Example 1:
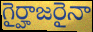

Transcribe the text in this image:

గైర్హాజరైనా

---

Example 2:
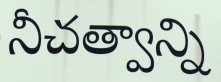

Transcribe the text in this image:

నీచత్వాన్ని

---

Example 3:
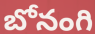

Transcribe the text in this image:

బోనంగి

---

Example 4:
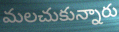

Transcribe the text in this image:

మలచుకున్నారు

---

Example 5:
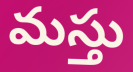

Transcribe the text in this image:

మస్తు